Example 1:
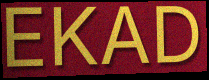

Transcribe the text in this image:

EKAD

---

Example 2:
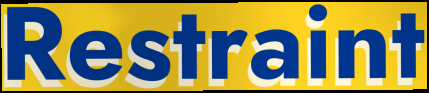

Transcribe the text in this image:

Restraint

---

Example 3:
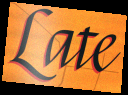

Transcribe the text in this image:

Late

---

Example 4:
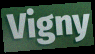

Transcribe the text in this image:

Vigny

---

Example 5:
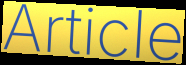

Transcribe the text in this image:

Article